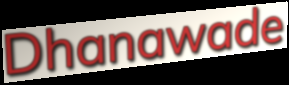
Dhanawade